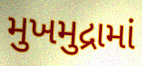
મુખમુદ્રામાં